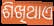
ଶିଖିଥାଏ